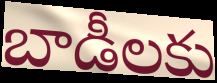
బాడీలకు